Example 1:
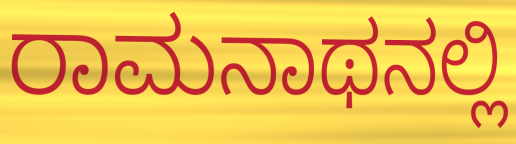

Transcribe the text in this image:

ರಾಮನಾಥನಲ್ಲಿ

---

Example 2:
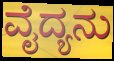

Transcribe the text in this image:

ವೈದ್ಯನು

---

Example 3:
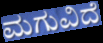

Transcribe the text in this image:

ಮಗುವಿದೆ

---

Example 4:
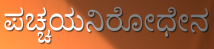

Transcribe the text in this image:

ಪಚ್ಚಯನಿರೋಧೇನ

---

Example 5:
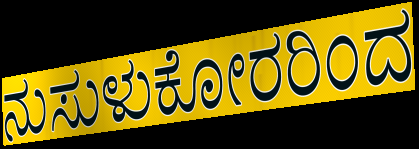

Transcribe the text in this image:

ನುಸುಳುಕೋರರಿಂದ